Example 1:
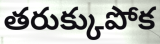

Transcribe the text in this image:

తరుక్కుపోక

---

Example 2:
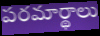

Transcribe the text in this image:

పరమార్థాలు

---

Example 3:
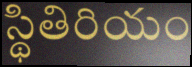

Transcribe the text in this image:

స్థితిరియం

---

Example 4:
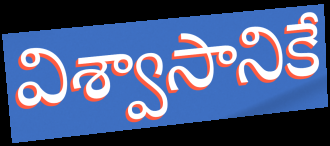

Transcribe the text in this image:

విశ్వాసానికే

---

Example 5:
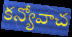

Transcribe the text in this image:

కన్యోవాచ